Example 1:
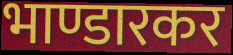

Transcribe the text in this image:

भाण्डारकर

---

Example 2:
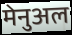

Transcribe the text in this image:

मेनुअल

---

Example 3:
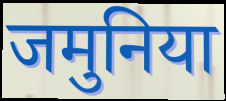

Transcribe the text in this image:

जमुनिया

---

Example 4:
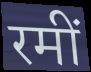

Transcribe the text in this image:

रमीं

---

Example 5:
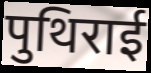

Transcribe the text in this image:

पुथिराई